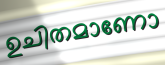
ഉചിതമാണോ